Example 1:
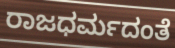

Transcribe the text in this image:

ರಾಜಧರ್ಮದಂತೆ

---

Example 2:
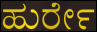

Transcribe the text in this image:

ಹುರ್ರೇ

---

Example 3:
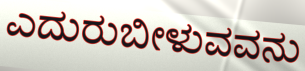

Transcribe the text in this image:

ಎದುರುಬೀಳುವವನು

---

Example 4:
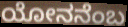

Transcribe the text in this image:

ಯೋನನೆಂಬ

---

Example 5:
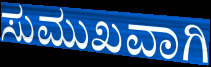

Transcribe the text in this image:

ಸುಮುಖವಾಗಿ